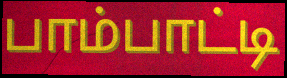
பாம்பாட்டி